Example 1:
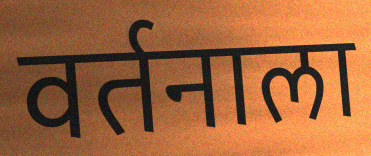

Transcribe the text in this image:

वर्तनाला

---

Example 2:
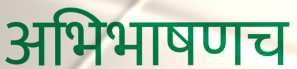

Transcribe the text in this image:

अभिभाषणच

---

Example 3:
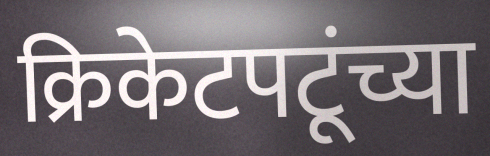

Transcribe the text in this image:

क्रिकेटपटूंच्या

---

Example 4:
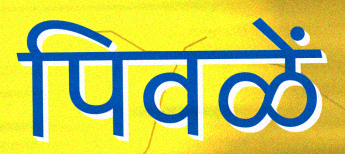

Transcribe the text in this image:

पिवळें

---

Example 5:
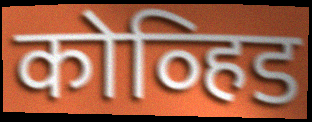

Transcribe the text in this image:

कोव्हिड